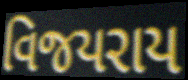
વિજયરાય